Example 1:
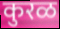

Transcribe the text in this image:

कुरळ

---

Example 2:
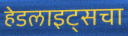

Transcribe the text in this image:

हेडलाइट्सचा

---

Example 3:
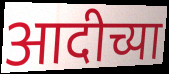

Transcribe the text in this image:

आदीच्या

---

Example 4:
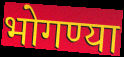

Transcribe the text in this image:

भोगण्या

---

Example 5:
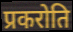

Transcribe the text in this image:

प्रकरोति